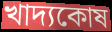
খাদ্যকোষ